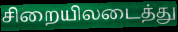
சிறையிலடைத்து